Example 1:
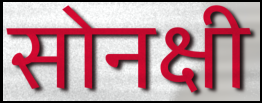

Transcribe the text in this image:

सोनक्षी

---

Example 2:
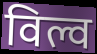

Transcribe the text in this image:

विल्व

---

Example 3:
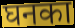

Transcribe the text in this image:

घनका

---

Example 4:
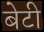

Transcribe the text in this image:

बेटी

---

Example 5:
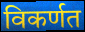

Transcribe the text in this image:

विकर्णत